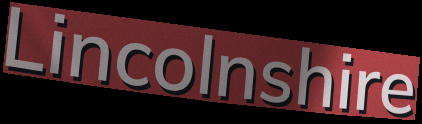
Lincolnshire